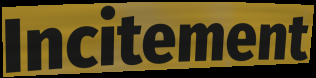
Incitement